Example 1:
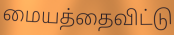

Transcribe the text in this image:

மையத்தைவிட்டு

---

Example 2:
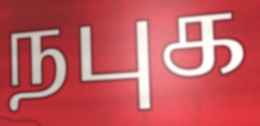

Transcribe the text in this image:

நபுக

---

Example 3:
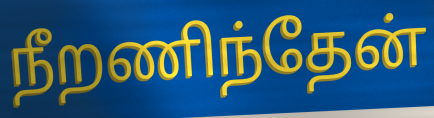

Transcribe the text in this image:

நீறணிந்தேன்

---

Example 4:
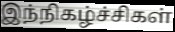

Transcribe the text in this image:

இந்நிகழ்ச்சிகள்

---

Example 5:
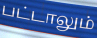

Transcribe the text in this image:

பட்டாலும்